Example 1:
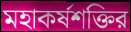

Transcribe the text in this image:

মহাকর্ষশক্তির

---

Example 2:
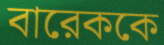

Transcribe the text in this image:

বারেককে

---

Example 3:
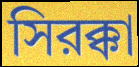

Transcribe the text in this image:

সিরক্কা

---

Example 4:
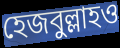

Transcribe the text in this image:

হেজবুল্লাহও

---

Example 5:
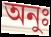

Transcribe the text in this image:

অনুঃ